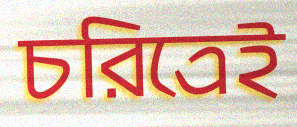
চরিত্রেই